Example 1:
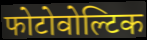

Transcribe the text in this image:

फोटोवोल्टिक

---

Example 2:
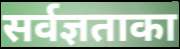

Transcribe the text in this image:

सर्वज्ञताका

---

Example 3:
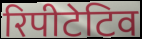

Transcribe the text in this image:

रिपीटेटिव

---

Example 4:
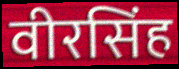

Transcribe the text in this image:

वीरसिंह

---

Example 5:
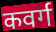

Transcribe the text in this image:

कवर्ग